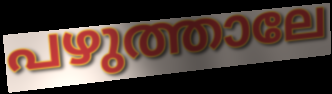
പഴുത്താലേ